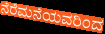
ನೆರೆಮನೆಯವರಿಂದ